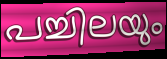
പച്ചിലയും